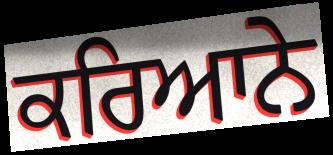
ਕਰਿਆਨੇ